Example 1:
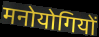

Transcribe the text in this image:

मनोयोगियों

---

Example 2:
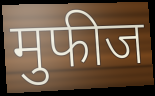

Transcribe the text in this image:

मुफीज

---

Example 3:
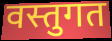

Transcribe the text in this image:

वस्तुगत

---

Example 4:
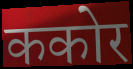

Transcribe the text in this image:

ककोर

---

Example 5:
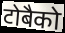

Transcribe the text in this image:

टोबैको